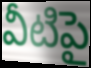
వీటిపై